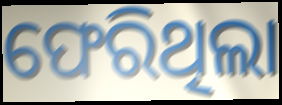
ଫେରିଥିଲା